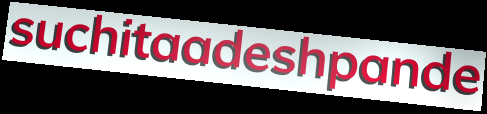
suchitaadeshpande